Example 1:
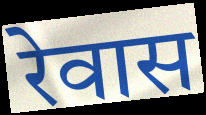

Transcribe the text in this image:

रेवास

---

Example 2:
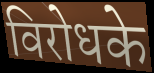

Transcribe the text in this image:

विरोधके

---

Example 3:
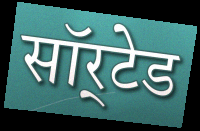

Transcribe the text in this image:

सॉर्टेड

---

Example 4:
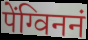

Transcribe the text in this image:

पेंग्विननं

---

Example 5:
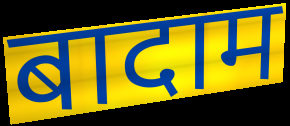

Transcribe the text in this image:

बादाम